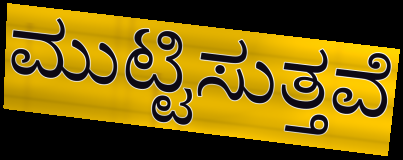
ಮುಟ್ಟಿಸುತ್ತವೆ